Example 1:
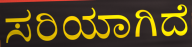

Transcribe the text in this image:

ಸರಿಯಾಗಿದೆ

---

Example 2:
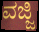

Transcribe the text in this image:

ವಜ್ಜಿ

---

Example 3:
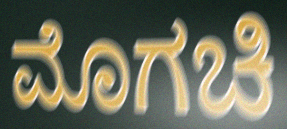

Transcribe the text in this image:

ಮೊಗಚಿ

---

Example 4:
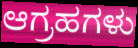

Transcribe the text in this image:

ಆಗ್ರಹಗಳು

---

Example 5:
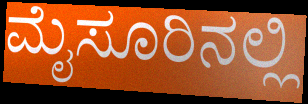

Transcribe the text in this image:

ಮೈಸೂರಿನಲ್ಲಿ